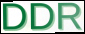
DDR